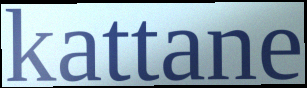
kattane